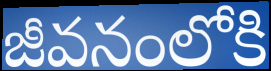
జీవనంలోకి